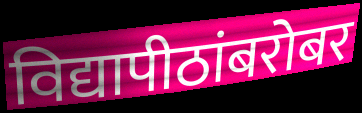
विद्यापीठांबरोबर